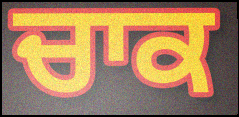
ਚਾਕ